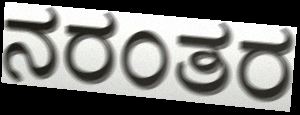
ನರಂತರ